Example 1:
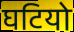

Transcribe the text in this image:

घटियो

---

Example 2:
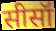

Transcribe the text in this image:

सीसॉ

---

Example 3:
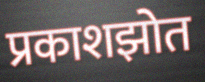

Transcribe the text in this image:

प्रकाशझोत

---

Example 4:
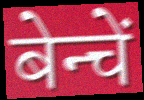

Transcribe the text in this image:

बेन्चें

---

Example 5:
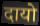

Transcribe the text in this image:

दायो